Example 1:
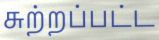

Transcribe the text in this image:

சுற்றப்பட்ட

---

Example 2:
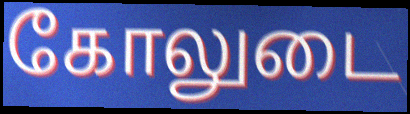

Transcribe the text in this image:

கோலுடை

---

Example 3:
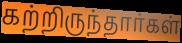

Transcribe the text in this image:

கற்றிருந்தார்கள்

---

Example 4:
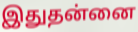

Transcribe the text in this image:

இதுதன்னை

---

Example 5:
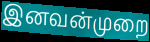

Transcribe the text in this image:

இனவன்முறை